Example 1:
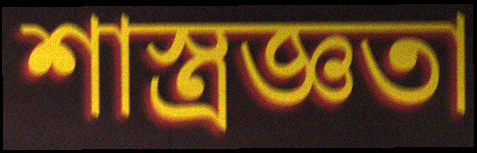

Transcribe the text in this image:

শাস্ত্রজ্ঞতা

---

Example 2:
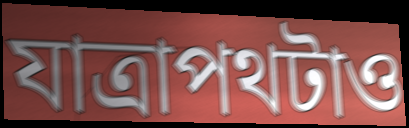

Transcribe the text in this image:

যাত্রাপথটাও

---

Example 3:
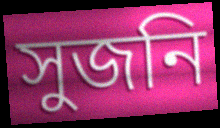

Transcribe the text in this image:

সুজনি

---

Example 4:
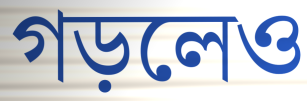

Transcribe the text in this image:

গড়লেও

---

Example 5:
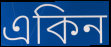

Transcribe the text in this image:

একিন